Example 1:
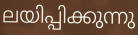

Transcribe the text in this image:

ലയിപ്പിക്കുന്നു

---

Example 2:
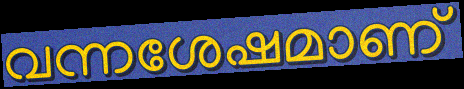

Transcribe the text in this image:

വന്നശേഷമാണ്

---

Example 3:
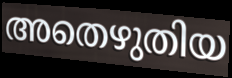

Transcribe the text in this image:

അതെഴുതിയ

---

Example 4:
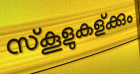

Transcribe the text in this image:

സ്കൂളുകള്ക്കും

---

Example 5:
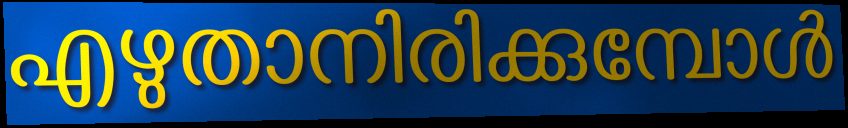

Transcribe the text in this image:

എഴുതാനിരിക്കുമ്പോൾ